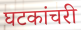
घटकांचरी